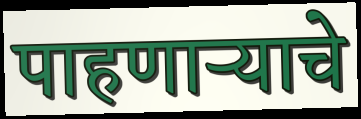
पाहणाऱ्याचे